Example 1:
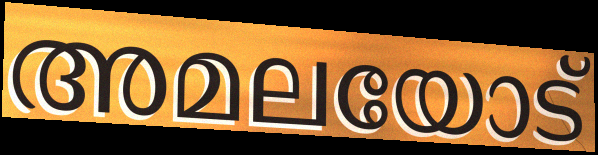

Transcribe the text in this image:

അമലയോട്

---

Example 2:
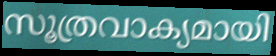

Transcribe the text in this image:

സൂത്രവാക്യമായി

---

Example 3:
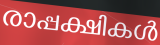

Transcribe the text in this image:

രാപ്പക്ഷികൾ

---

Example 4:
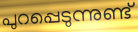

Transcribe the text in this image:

പുറപ്പെടുന്നുണ്ട്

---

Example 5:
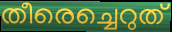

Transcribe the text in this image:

തീരെച്ചെറുത്